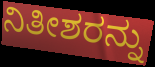
ನಿತೀಶರನ್ನು